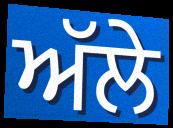
ਅੱਲੇ